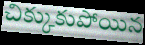
చిక్కుకుపోయిన